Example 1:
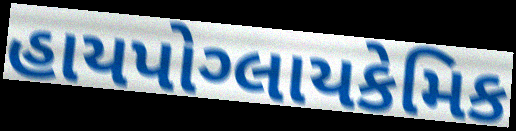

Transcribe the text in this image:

હાયપોગ્લાયકેમિક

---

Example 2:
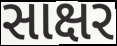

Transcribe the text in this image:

સાક્ષર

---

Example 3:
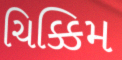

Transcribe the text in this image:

ચિક્કિમ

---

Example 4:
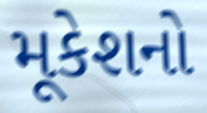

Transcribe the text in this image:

મૂકેશનો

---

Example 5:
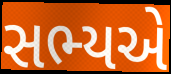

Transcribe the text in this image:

સભ્યએ